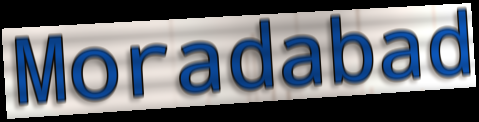
Moradabad